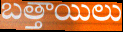
బత్తాయిలు